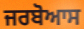
ਜਰਬੋਆਸ